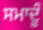
ਸਮਾਦੂੰ